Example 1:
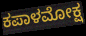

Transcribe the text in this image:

ಕಪಾಳಮೋಕ್ಷ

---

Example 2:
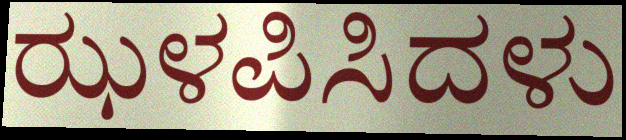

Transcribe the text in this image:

ಝಳಪಿಸಿದಳು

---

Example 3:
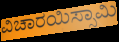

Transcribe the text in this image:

ವಿಚಾರಯಿಸ್ಸಾಮಿ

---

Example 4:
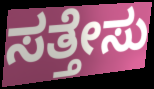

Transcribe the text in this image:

ಸತ್ತೇಸು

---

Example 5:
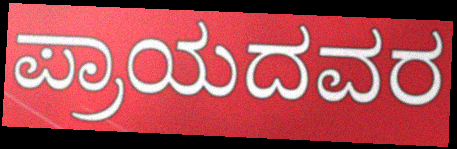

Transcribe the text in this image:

ಪ್ರಾಯದವರ